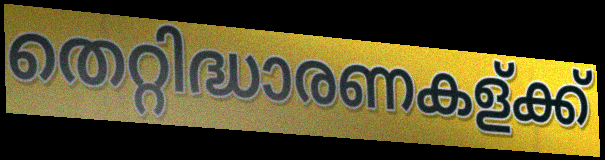
തെറ്റിദ്ധാരണകള്ക്ക്